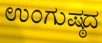
ಉಂಗುಷ್ಠದ